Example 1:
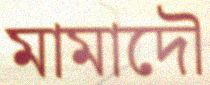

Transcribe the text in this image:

মামাদৌ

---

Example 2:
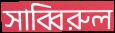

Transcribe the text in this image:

সাব্বিরুল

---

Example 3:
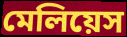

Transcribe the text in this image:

মেলিয়েস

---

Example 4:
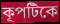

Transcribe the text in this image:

কূপটিকে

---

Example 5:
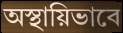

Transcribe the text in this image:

অস্থায়িভাবে